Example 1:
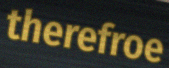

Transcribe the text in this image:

therefroe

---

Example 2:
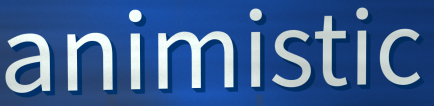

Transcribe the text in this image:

animistic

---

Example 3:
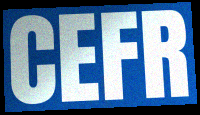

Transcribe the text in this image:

CEFR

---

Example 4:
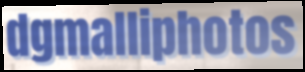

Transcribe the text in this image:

dgmalliphotos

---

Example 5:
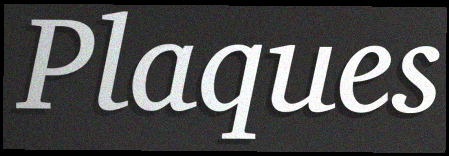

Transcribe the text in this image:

Plaques